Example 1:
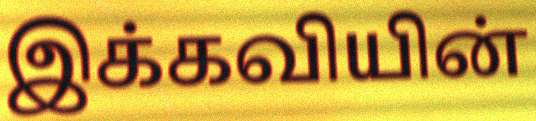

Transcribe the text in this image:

இக்கவியின்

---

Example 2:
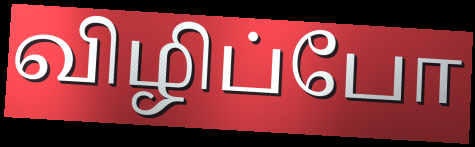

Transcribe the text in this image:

விழிப்போ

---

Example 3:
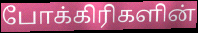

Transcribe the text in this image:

போக்கிரிகளின்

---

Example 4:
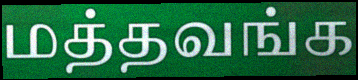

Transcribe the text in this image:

மத்தவங்க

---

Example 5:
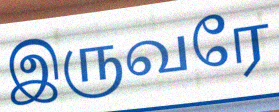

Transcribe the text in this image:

இருவரே